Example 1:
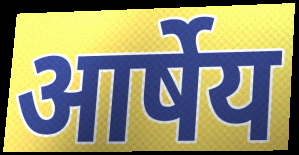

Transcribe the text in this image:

आर्षेय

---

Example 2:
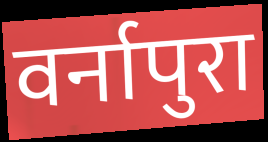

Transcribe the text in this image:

वर्नापुरा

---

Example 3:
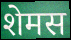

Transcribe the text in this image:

शेमस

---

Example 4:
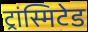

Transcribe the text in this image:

ट्रांस्मिटेड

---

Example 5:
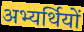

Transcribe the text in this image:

अभ्यर्थियों